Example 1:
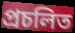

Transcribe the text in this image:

প্রচলিত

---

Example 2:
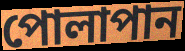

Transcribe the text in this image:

পোলাপান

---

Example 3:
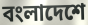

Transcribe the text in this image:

বংলাদেশে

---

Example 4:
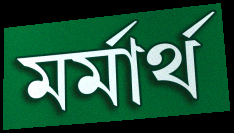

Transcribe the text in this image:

মর্মার্থ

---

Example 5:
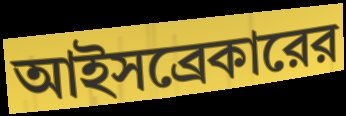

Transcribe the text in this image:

আইসব্রেকারের